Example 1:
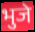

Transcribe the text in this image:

भुजे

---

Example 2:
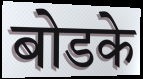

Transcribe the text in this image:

बोडके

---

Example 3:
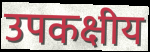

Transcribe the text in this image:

उपकक्षीय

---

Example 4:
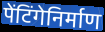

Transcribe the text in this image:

पेंटिंगेनिर्माण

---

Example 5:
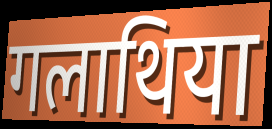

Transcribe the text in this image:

गलाथिया